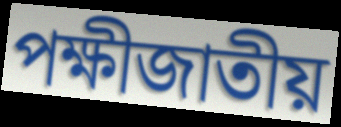
পক্ষীজাতীয়